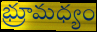
భ్రూమధ్యం